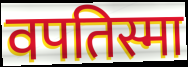
वपतिस्मा